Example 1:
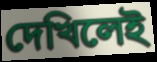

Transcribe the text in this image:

দেখিলেই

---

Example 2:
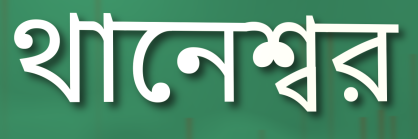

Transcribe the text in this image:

থানেশ্বর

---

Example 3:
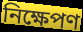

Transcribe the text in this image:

নিক্ষেপণ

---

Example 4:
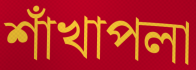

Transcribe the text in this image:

শাঁখাপলা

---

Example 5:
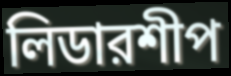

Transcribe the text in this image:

লিডারশীপ